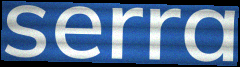
serra